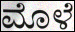
ಮೊಳೆ